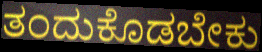
ತಂದುಕೊಡಬೇಕು